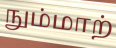
நும்மாற்